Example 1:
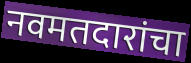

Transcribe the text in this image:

नवमतदारांचा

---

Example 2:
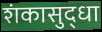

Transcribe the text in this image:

शंकासुद्धा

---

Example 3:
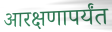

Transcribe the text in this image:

आरक्षणापर्यंत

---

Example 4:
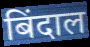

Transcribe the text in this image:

बिंदाल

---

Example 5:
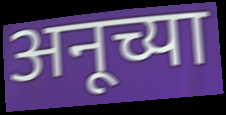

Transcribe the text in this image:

अनूच्या